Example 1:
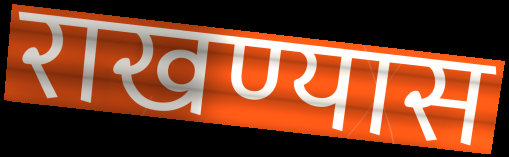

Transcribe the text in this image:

राखण्यास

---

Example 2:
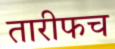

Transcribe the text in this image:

तारीफच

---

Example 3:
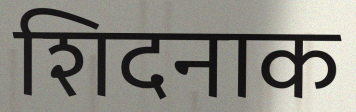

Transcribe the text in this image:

शिदनाक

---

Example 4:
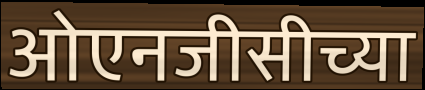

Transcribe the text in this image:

ओएनजीसीच्या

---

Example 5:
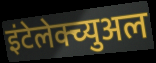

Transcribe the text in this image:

इंटेलेक्च्युअल